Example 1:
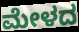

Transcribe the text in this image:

ಮೇಳದ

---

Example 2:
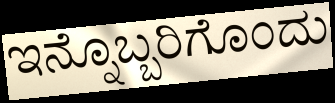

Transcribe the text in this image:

ಇನ್ನೊಬ್ಬರಿಗೊಂದು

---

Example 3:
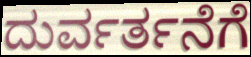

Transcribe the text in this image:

ದುರ್ವರ್ತನೆಗೆ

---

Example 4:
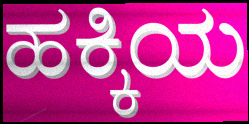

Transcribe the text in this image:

ಹಕ್ಕಿಯ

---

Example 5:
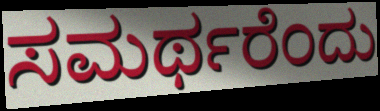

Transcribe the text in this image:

ಸಮರ್ಥರೆಂದು